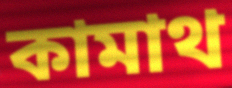
কামাথ